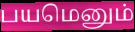
பயமெனும்